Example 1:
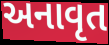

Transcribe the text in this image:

અનાવૃત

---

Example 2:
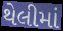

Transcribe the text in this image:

થેલીમાં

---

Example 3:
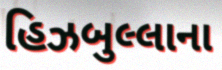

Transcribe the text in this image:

હિઝબુલ્લાના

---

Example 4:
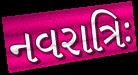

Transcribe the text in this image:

નવરાત્રિઃ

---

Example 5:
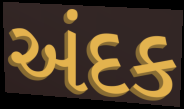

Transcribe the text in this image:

અંદક